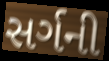
સર્ગની